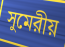
সুমেরীয়